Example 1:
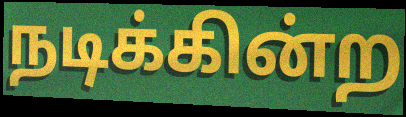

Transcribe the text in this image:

நடிக்கின்ற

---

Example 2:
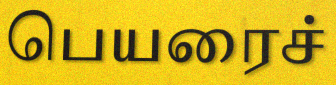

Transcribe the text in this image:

பெயரைச்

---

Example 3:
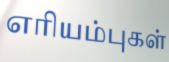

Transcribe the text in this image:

எரியம்புகள்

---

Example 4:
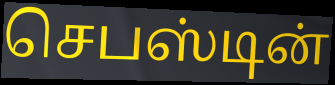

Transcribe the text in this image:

செபஸ்டின்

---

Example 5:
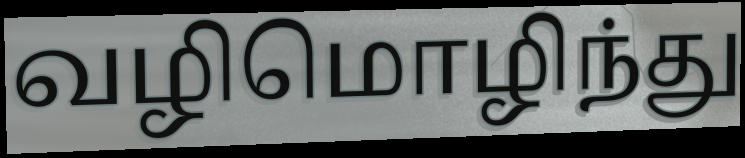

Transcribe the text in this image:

வழிமொழிந்து